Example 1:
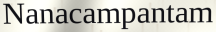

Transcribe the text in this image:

Nanacampantam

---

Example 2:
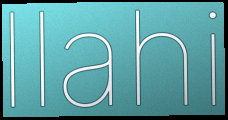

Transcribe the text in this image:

Ilahi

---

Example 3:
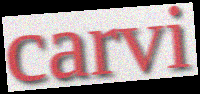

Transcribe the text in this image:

carvi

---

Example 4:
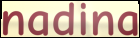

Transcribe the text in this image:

nadina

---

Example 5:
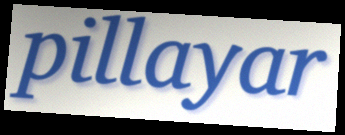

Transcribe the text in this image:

pillayar